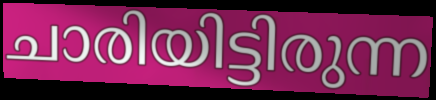
ചാരിയിട്ടിരുന്ന